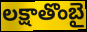
లక్షాతొంబై